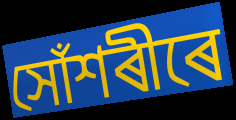
সোঁশৰীৰে